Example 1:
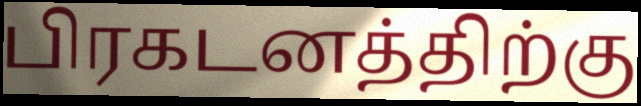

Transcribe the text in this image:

பிரகடனத்திற்கு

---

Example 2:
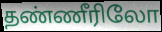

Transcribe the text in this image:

தண்ணீரிலோ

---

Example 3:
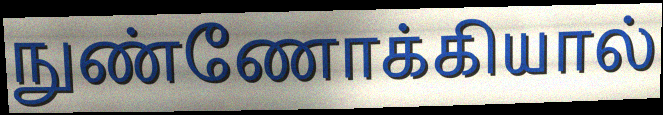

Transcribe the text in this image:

நுண்ணோக்கியால்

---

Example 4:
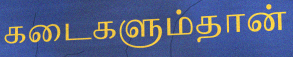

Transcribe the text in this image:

கடைகளும்தான்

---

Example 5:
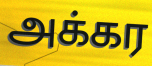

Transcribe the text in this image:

அக்கர